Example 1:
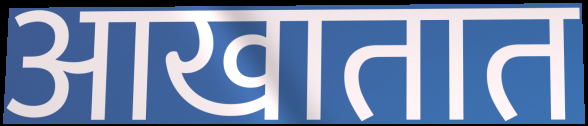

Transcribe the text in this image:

आखातात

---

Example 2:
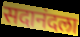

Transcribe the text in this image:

सदानंदला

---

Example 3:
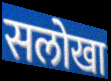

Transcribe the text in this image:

सलोखा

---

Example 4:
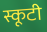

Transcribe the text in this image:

स्कूटी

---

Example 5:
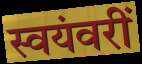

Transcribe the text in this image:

स्वयंवरीं